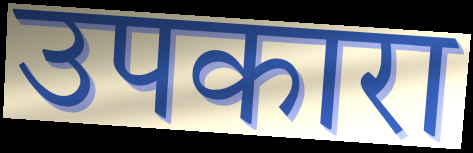
उपकारा